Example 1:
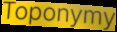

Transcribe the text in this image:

Toponymy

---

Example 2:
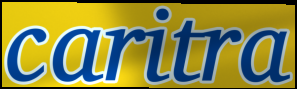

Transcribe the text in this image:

caritra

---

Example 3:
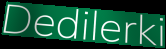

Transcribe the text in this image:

Dedilerki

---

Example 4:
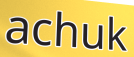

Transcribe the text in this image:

achuk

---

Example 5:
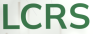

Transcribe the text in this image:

LCRS